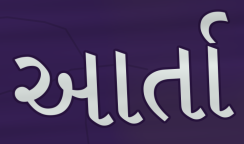
આર્તા